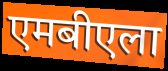
एमबीएला